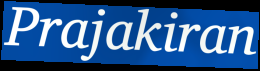
Prajakiran